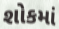
શોકમાં